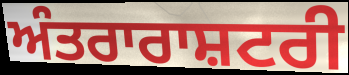
ਅੰਤਰਾਰਾਸ਼ਟਰੀ